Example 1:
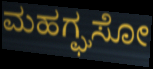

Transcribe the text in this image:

ಮಹಗ್ಘಸೋ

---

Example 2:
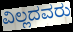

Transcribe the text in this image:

ವಿಲ್ಲದವರು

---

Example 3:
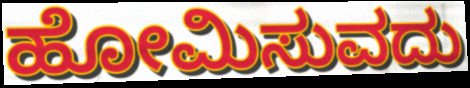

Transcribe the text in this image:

ಹೋಮಿಸುವದು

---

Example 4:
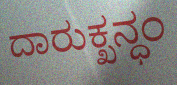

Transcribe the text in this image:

ದಾರುಕ್ಖನ್ಧಂ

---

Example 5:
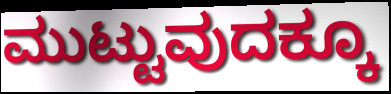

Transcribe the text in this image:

ಮುಟ್ಟುವುದಕ್ಕೂ